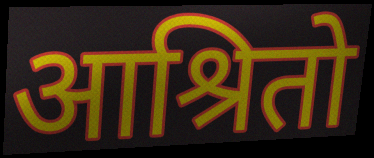
आश्रितो